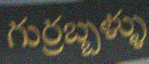
గుర్రబ్బళ్ళు